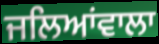
ਜਲਿਆਂਵਾਲਾ